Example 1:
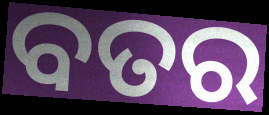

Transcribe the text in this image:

ବତର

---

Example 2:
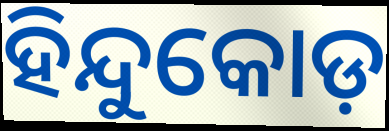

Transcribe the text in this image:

ହିନ୍ଦୁକୋଡ଼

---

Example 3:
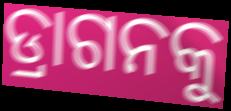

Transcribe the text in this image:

ଡ୍ରାଗନକୁ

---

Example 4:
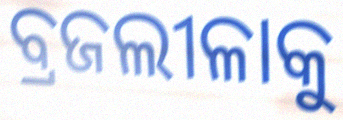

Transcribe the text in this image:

ବ୍ରଜଲୀଳାକୁ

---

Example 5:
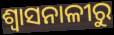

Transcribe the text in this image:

ଶ୍ୱାସନାଳୀରୁ